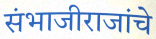
संभाजीराजांचे